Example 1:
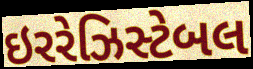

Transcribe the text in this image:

ઇરરેઝિસ્ટેબલ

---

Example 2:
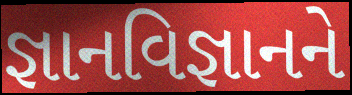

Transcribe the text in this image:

જ્ઞાનવિજ્ઞાનને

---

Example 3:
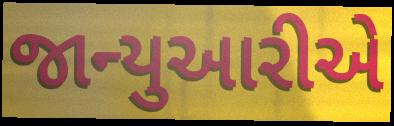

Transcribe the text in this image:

જાન્યુઆરીએ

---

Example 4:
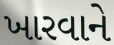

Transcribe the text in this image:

ખારવાને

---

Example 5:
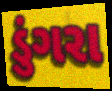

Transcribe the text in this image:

ડુંગરા